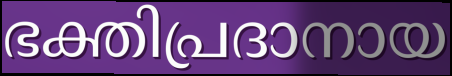
ഭക്തിപ്രദാനായ